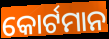
କୋର୍ଟମାନ